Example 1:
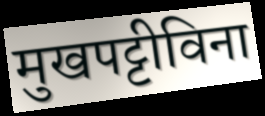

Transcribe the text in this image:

मुखपट्टीविना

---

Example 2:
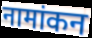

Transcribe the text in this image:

नामांकन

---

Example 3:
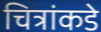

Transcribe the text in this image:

चित्रांकडे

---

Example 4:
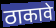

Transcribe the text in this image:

ठाकावे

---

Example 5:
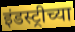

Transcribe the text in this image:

इंडस्ट्रीच्या